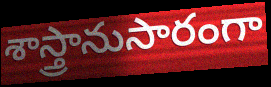
శాస్త్రానుసారంగా